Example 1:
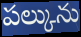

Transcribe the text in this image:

పల్కును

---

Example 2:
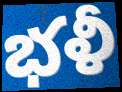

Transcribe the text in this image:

భళీ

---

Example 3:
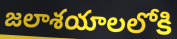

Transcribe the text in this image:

జలాశయాలలోకి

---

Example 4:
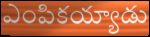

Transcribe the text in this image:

ఎంపికయ్యాడు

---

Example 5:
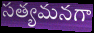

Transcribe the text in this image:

సత్యమనగా